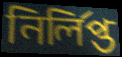
নিৰ্লিপ্ত